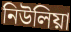
নিউলিয়া